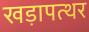
खड़ापत्थर